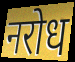
नरोध